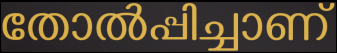
തോൽപ്പിച്ചാണ്